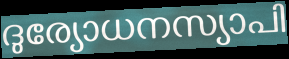
ദുര്യോധനസ്യാപി